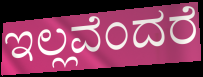
ಇಲ್ಲವೆಂದರೆ